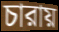
চারায়